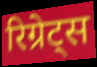
रिग्रेट्स